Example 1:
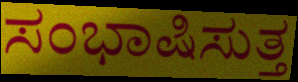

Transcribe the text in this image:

ಸಂಭಾಷಿಸುತ್ತ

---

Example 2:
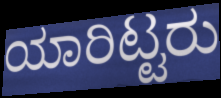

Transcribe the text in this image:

ಯಾರಿಟ್ಟರು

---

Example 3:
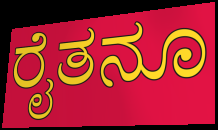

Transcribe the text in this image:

ರೈತನೂ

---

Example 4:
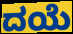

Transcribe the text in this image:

ದಯೆ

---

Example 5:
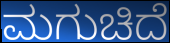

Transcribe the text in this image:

ಮಗುಚಿದೆ